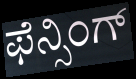
ಫೆನ್ಸಿಂಗ್